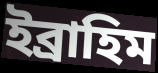
ইব্রাহিম